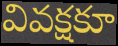
వివక్షకూ